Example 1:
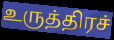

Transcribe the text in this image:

உருத்திரச்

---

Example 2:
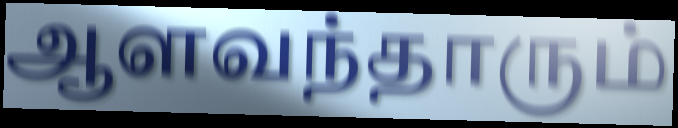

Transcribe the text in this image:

ஆளவந்தாரும்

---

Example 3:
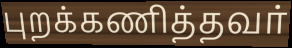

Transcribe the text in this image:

புறக்கணித்தவர்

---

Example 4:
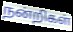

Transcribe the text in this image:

நன்றிகள்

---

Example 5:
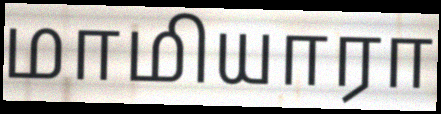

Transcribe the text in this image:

மாமியாரா